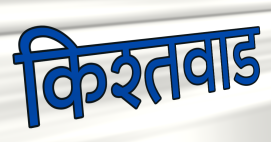
किश्तवाड